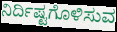
ನಿರ್ದಿಷ್ಟಗೊಳಿಸುವ